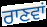
ਰਾਣਵਾਂ